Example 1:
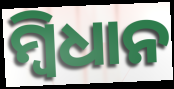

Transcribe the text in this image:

ମ୍ବିଧାନ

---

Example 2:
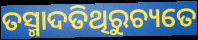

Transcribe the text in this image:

ତସ୍ମାଦତିଥିରୁଚ୍ୟତେ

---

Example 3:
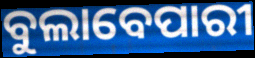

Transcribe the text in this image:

ବୁଲାବେପାରୀ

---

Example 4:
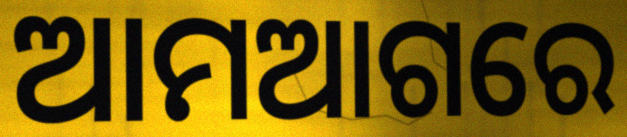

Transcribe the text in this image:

ଆମଆଗରେ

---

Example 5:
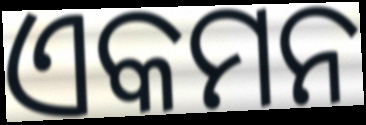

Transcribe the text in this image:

ଏକମନ